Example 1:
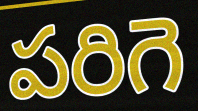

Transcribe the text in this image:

పరిగె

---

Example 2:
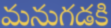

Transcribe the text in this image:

మనుగడకి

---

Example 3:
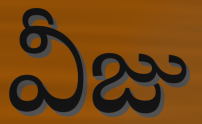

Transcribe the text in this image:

వీజు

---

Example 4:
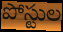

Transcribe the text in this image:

పోస్టుల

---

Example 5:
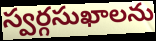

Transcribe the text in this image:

స్వర్గసుఖాలను